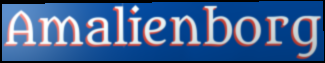
Amalienborg